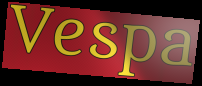
Vespa